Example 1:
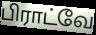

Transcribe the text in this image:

பிராட்வே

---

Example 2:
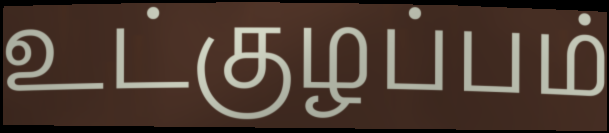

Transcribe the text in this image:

உட்குழப்பம்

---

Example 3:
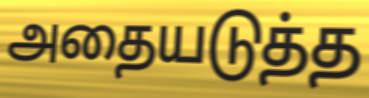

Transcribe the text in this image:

அதையடுத்த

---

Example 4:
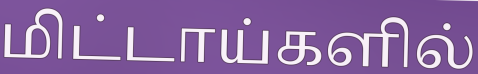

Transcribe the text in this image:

மிட்டாய்களில்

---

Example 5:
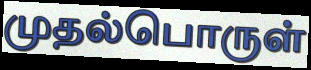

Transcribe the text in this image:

முதல்பொருள்